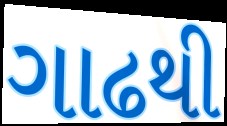
ગાઢથી